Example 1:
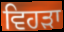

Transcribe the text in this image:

ਵਿਹੜਾ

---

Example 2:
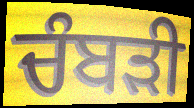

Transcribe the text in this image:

ਚੰਬੜੀ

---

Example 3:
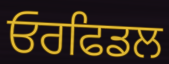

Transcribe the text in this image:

ਓਰਫਿਡਲ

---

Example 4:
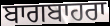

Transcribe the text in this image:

ਬਾਗਬਾਹਰਾ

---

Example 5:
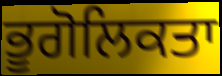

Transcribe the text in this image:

ਭੂਗੋਲਿਕਤਾ